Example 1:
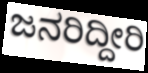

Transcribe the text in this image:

ಜನರಿದ್ದೀರಿ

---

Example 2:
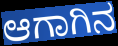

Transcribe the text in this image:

ಆಗಾಗಿನ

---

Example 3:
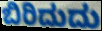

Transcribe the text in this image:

ಬಿರಿದುದು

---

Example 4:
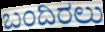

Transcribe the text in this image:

ಬಂದಿರಲು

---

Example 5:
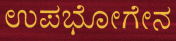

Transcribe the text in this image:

ಉಪಭೋಗೇನ